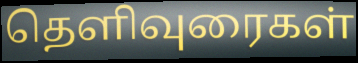
தெளிவுரைகள்